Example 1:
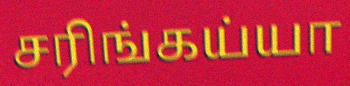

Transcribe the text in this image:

சரிங்கய்யா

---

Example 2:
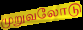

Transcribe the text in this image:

முறுவலோடு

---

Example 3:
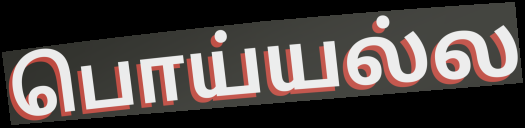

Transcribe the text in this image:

பொய்யல்ல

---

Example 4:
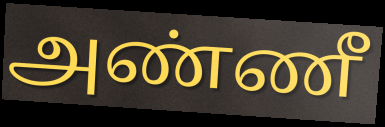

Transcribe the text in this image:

அண்ணீ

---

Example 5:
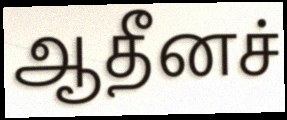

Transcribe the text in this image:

ஆதீனச்